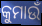
କୁମାଉଁ